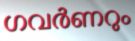
ഗവർണറും